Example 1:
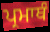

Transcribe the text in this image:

ਪ੍ਰਮਾਥੰ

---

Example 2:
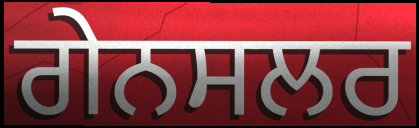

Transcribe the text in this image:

ਗੇਨਸਲਰ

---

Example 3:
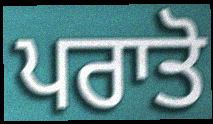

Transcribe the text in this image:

ਪਰਾਤੋ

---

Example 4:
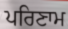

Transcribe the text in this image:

ਪਰਿਣਾਮ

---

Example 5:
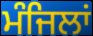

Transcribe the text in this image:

ਮੰਜਿਲਾਂ